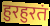
हुरहुरतं